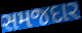
સમજદાર